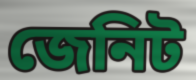
জেনিট